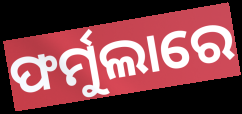
ଫର୍ମୁଲାରେ